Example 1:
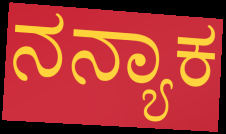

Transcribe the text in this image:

ನನ್ಯಾಕ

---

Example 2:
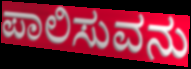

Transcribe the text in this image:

ಪಾಲಿಸುವನು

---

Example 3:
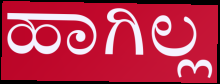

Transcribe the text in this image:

ಹಾಗಿಲ್ಲ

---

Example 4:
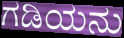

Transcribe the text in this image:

ಗಡಿಯನು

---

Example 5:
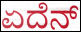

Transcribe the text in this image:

ಏದೆನ್